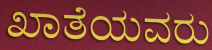
ಖಾತೆಯವರು